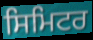
ਸਿਮਿਟਰ